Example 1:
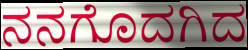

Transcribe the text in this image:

ನನಗೊದಗಿದ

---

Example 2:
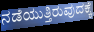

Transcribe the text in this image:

ನಡೆಯುತ್ತಿರುವುದಕ್ಕೆ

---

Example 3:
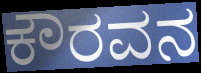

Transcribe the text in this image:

ಕೌರವನ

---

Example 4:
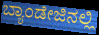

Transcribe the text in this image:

ಬ್ಯಾಂಡೇಜಿನಲ್ಲಿ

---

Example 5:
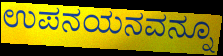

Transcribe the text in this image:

ಉಪನಯನವನ್ನೂ